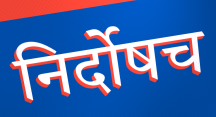
निर्दोषच